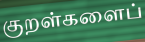
குறள்களைப்